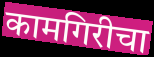
कामगिरीचा